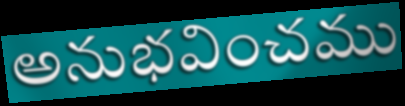
అనుభవించము